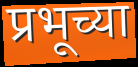
प्रभूच्या